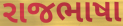
રાજભાષા